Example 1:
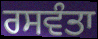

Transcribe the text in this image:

ਰਸਵੰਤਾ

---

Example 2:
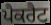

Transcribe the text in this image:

ਪੈਕਰੈਟ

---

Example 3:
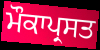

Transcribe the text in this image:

ਮੌਕਾਪ੍ਰਸਤ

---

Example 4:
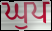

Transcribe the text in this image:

ਘੁਪ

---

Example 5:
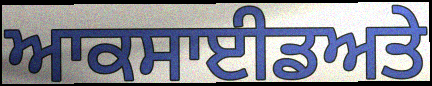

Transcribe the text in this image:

ਆਕਸਾਈਡਅਤੇ